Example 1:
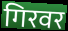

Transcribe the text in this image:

गिरवर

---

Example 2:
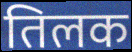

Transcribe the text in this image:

तिलक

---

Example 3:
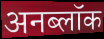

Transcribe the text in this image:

अनब्लॉक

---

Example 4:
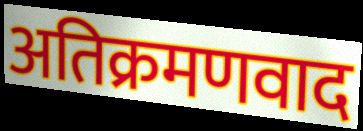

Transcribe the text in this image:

अतिक्रमणवाद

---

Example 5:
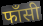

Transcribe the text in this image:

फाँसी